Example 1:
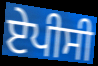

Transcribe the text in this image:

ਏਪੀਸੀ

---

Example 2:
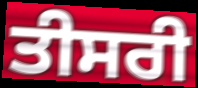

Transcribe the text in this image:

ਤੀਸਰੀ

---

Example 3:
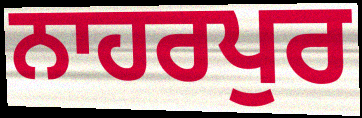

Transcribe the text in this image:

ਨਾਹਰਪੁਰ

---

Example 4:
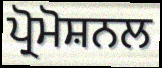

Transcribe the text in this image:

ਪ੍ਰੋਮੋਸ਼ਨਲ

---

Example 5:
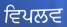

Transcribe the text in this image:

ਵਿਪਲਵ